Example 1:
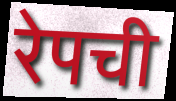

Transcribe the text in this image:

रेपची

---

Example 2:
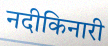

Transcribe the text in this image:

नदीकिनारी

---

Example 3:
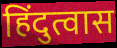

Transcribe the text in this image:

हिंदुत्वास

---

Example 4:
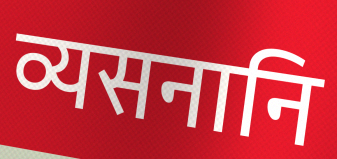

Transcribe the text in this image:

व्यसनानि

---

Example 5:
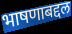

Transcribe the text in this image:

भाषणाबद्दल